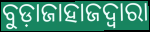
ବୁଡ଼ାଜାହାଜଦ୍ୱାରା